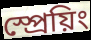
স্প্রেয়িং